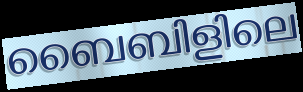
ബൈബിളിലെ